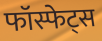
फॉस्फेट्स